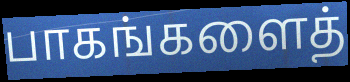
பாகங்களைத்